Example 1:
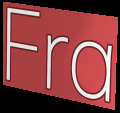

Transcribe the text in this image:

Fra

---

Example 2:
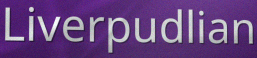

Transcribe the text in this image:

Liverpudlian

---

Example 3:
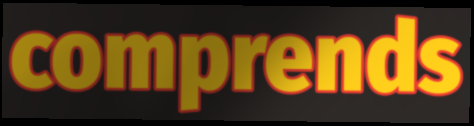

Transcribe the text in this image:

comprends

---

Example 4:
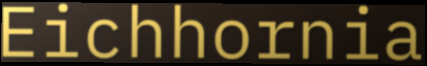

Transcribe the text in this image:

Eichhornia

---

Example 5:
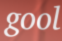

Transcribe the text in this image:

gool